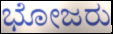
ಭೋಜರು